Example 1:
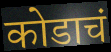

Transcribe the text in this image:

कोडाचं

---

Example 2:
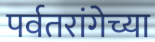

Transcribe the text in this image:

पर्वतरांगेच्या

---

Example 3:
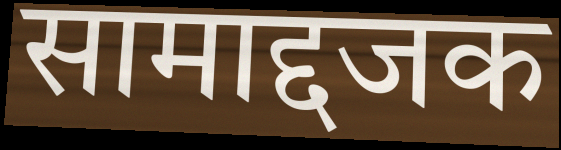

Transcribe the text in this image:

सामाद्दजक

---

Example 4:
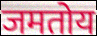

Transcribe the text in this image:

जमतोय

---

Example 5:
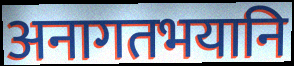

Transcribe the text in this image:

अनागतभयानि